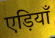
एड़ियाँ